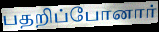
பதறிப்போனார்